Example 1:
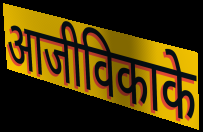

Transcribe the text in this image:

आजीविकाके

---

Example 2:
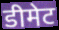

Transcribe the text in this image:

डीमेट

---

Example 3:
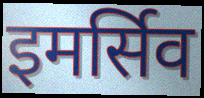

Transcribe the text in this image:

इमर्सिव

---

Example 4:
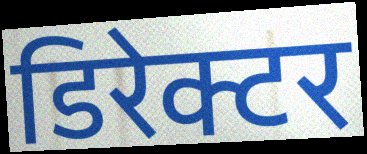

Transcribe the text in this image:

डिरेक्टर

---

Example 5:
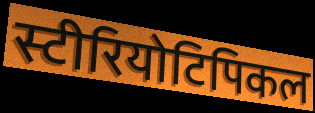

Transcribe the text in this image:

स्टीरियोटिपिकल